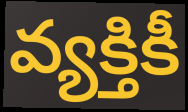
వ్యక్తికీ